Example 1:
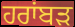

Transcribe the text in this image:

ਹਰਾਂਬੜ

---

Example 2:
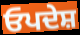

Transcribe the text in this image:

ਓਪਦੇਸ਼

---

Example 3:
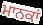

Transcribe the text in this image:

ਮਾਨਕਾਂ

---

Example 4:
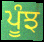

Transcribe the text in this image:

ਪੂੰਝ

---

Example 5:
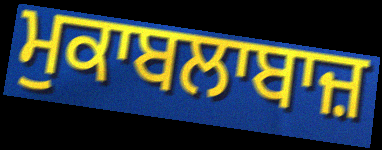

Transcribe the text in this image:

ਮੁਕਾਬਲਾਬਾਜ਼